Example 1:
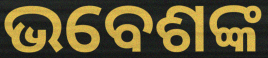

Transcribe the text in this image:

ଭବେଶଙ୍କ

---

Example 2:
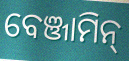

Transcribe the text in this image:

ବେଞ୍ଜାମିନ୍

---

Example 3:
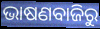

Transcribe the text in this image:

ଭାଷଣବାଜିରୁ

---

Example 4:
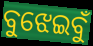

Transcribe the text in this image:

ବୁଝେଇବୁଁ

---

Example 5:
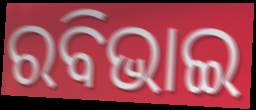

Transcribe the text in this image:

ରବିଭାଇ